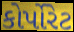
કોર્પોરેટ